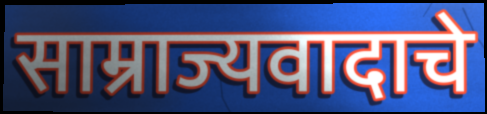
साम्राज्यवादाचे